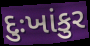
દુઃખાંકુર